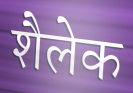
शैलेक